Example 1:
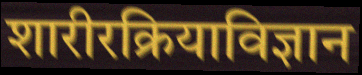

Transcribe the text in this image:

शारीरक्रियाविज्ञान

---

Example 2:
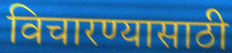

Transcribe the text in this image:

विचारण्यासाठी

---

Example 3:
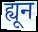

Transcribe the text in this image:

ह्यून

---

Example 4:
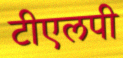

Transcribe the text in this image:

टीएलपी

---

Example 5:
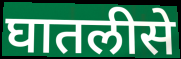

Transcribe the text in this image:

घातलीसे